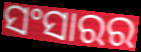
ସଂସାରର